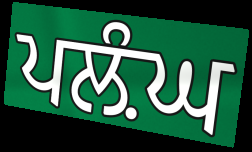
ਪਲ਼ੰਘ